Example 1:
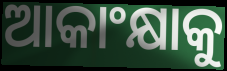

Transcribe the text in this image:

ଆକାଂକ୍ଷାକୁ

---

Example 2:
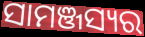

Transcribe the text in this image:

ସାମଞ୍ଜସ୍ୟର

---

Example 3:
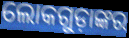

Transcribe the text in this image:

ଲୋକଗୁଡ଼ାଙ୍କର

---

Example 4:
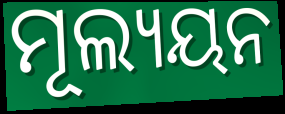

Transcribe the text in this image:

ମୂଲ୍ୟୟନ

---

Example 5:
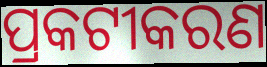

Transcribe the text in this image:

ପ୍ରକଟୀକରଣ